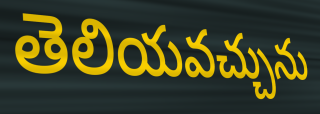
తెలియవచ్చును